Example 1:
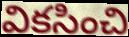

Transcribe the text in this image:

వికసించి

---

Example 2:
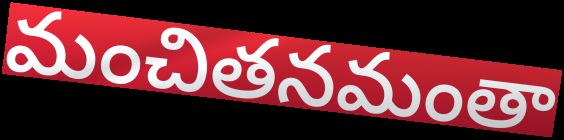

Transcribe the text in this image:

మంచితనమంతా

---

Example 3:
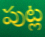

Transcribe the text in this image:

పుట్ల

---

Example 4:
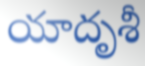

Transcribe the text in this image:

యాదృశీ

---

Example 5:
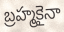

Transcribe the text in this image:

బ్రహ్మకైనా